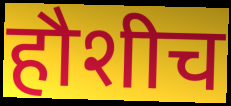
हौशीच